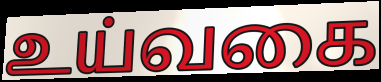
உய்வகை